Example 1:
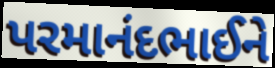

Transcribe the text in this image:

પરમાનંદભાઈને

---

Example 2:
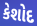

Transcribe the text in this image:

કેશોદ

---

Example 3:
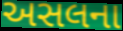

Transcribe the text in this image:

અસલના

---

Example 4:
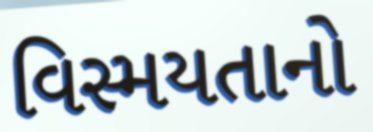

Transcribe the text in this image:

વિસ્મયતાનો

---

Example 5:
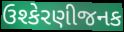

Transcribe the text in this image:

ઉશ્કેરણીજનક